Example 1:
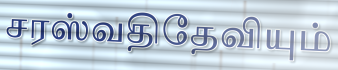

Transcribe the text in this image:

சரஸ்வதிதேவியும்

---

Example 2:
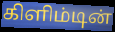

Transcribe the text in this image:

கிளிம்டின்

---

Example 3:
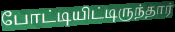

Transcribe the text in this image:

போட்டியிட்டிருந்தார்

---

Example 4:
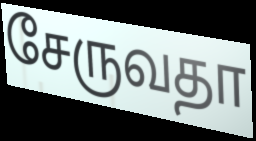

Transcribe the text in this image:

சேருவதா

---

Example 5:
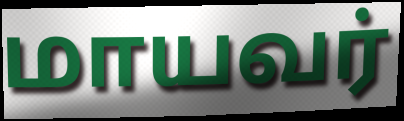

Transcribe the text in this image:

மாயவர்